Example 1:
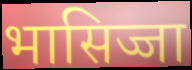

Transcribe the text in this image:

भासिज्जा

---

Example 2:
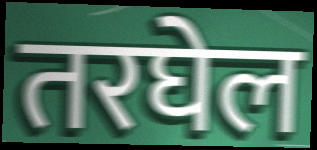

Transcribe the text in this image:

तरघेल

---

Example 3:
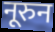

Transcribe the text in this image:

नूरुन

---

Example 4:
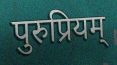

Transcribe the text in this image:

पुरुप्रियम्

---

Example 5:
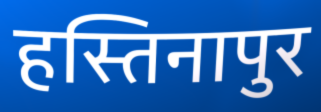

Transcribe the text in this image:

हस्तिनापुर